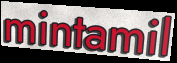
mintamil